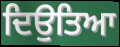
ਦਿਉਤਿਆ